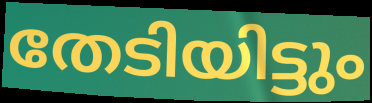
തേടിയിട്ടും